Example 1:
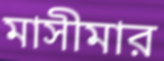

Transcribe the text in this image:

মাসীমার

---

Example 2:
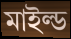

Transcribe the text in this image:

মাইল্ড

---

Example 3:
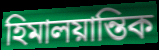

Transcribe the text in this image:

হিমালয়ান্তিক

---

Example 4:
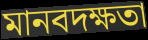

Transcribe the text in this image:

মানবদক্ষতা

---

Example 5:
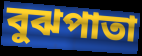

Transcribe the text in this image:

বুঝপাতা